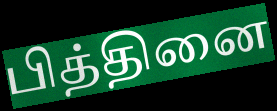
பித்தினை